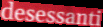
desessanti